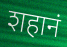
शहानं